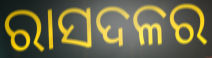
ରାସଦଳର